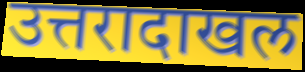
उत्तरादाखल